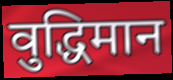
वुद्धिमान